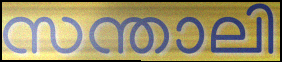
സന്താലി